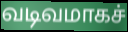
வடிவமாகச்